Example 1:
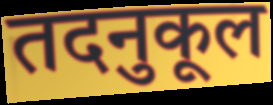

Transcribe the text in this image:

तदनुकूल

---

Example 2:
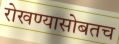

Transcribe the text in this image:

रोखण्यासोबतच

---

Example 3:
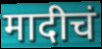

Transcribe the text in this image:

मादीचं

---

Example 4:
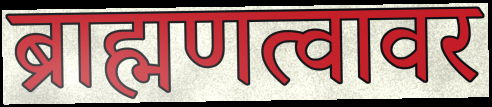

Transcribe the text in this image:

ब्राह्मणत्वावर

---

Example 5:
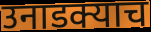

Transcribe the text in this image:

उनाडक्याच